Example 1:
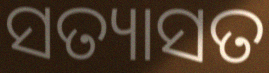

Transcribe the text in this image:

ସତ୍ୟାସତ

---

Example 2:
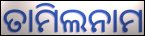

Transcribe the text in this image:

ତାମିଲନାମ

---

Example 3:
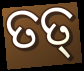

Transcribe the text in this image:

ତତ୍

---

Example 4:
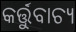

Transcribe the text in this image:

କର୍ତ୍ତୁବାଚ୍ୟ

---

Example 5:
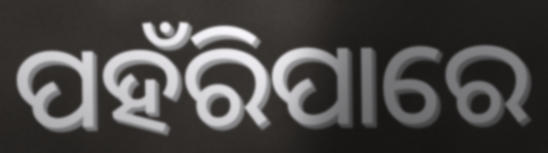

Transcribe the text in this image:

ପହଁରିପାରେ